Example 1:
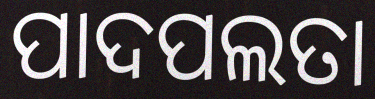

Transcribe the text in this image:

ପାଦପଲତା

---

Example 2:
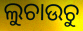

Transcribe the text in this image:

ଲୁଚାଉଚୁ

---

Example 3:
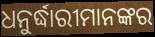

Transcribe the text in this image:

ଧନୁର୍ଦ୍ଧାରୀମାନଙ୍କର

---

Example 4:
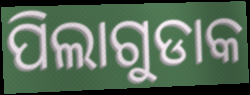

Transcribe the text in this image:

ପିଲାଗୁଡାକ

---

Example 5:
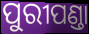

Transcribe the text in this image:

ପୁରୀପଣ୍ଡା